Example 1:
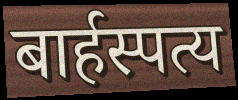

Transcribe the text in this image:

बार्हस्पत्य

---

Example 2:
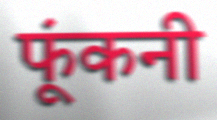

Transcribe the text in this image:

फूंकनी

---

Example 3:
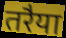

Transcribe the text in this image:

तरैया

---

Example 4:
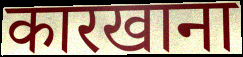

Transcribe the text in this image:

कारखाना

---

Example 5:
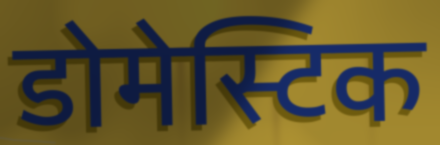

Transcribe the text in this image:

डोमेस्टिक